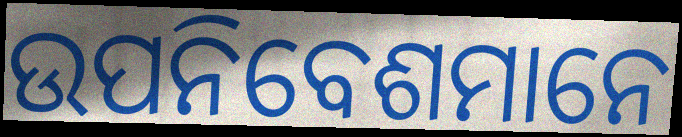
ଉପନିବେଶମାନେ